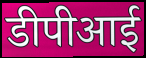
डीपीआई